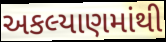
અકલ્યાણમાંથી